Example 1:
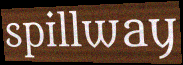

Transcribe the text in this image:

spillway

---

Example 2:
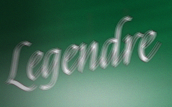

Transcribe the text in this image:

Legendre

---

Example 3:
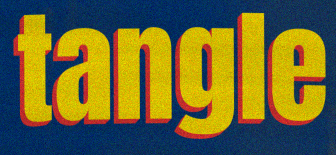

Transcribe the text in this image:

tangle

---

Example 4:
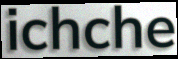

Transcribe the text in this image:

ichche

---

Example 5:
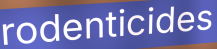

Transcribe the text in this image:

rodenticides